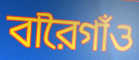
বারৈগাঁও